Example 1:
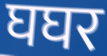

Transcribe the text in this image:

घघर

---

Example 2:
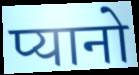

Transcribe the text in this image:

प्यानो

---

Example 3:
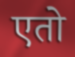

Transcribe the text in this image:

एतो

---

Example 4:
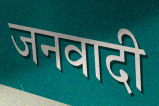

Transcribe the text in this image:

जनवादी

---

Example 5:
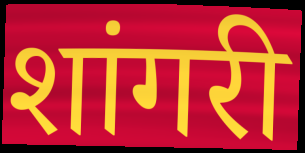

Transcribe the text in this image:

शांगरी